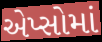
એપ્સોમાં